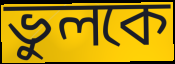
ভুলকে